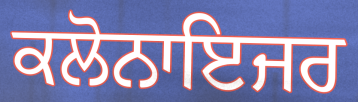
ਕਲੋਨਾਇਜਰ